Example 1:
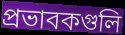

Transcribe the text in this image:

প্রভাবকগুলি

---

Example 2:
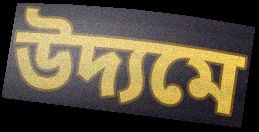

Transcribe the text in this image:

উদ্যমে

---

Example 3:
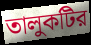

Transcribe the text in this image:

তালুকটির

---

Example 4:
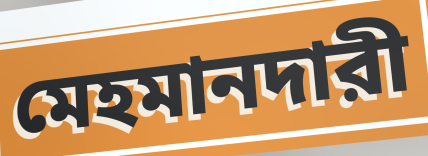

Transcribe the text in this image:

মেহমানদারী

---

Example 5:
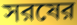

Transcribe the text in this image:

সরষের